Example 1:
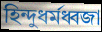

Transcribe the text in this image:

হিন্দুধর্মধ্বজা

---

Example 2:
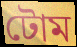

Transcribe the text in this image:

টোম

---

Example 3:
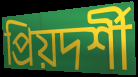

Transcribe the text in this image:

প্রিয়দর্শী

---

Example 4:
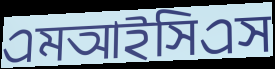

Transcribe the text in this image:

এমআইসিএস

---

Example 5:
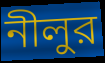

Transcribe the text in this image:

নীলুর